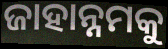
ଜାହାନ୍ନମକୁ